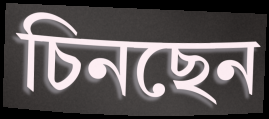
চিনছেন